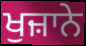
ਖੁਜ਼ਾਨੇ